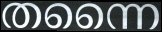
തന്നൈ